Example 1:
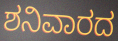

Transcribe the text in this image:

ಶನಿವಾರದ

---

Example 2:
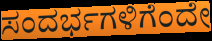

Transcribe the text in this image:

ಸಂದರ್ಭಗಳಿಗೆಂದೇ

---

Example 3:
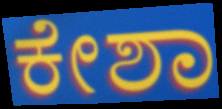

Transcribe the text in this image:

ಕೇಶಾ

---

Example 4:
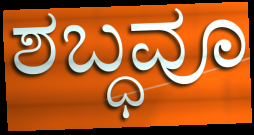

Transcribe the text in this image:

ಶಬ್ಧವೂ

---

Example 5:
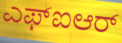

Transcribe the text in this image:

ಎಫ್ಐಆರ್